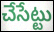
చేసేట్టు